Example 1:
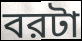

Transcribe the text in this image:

বরটা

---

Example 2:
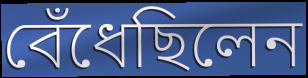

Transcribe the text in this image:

বেঁধেছিলেন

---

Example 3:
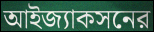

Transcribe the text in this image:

আইজ্যাকসনের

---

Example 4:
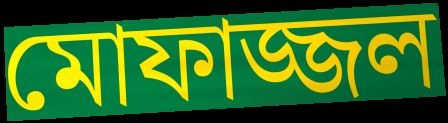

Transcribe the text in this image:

মোফাজ্জল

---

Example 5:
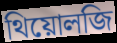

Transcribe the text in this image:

থিয়োলজি